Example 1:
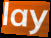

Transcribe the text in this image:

lay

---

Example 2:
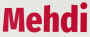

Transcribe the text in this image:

Mehdi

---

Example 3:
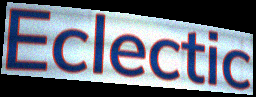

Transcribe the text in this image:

Eclectic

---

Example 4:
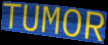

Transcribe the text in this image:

TUMOR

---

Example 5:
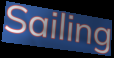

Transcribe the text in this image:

Sailing